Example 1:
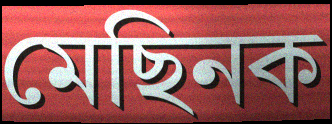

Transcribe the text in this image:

মেছিনক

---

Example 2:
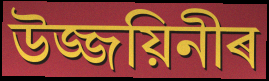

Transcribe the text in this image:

উজ্জয়িনীৰ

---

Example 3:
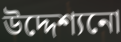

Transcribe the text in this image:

উদ্দেশ্যনো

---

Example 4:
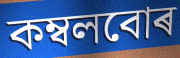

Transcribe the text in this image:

কম্বলবোৰ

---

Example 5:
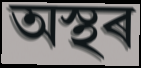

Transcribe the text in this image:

অস্থৰ